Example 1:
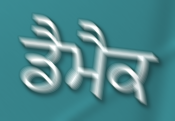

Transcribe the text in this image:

ਡੈਮੈਕ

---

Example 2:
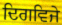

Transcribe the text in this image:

ਦਿਗਵਿਜੇ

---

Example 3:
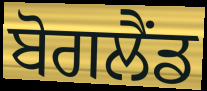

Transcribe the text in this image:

ਬੋਗਲੈਂਡ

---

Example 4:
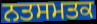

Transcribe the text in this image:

ਨਤਸਮਤਕ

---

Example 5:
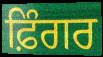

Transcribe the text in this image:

ਫ਼ਿੰਗਰ